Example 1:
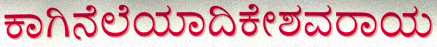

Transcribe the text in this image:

ಕಾಗಿನೆಲೆಯಾದಿಕೇಶವರಾಯ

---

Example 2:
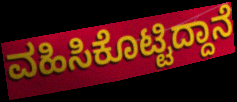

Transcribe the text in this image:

ವಹಿಸಿಕೊಟ್ಟಿದ್ದಾನೆ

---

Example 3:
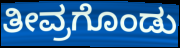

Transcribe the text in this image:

ತೀವ್ರಗೊಂಡು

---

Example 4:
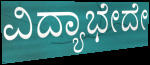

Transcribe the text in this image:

ವಿದ್ಯಾಭೇದೇ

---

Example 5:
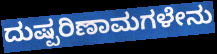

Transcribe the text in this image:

ದುಷ್ಪರಿಣಾಮಗಳೇನು